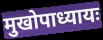
मुखोपाध्यायः